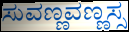
ಸುವಣ್ಣವಣ್ಣಸ್ಸ